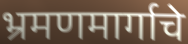
भ्रमणमार्गाचे